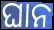
ଘାନ